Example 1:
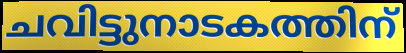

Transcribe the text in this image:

ചവിട്ടുനാടകത്തിന്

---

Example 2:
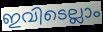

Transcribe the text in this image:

ഇവിടെല്ലാം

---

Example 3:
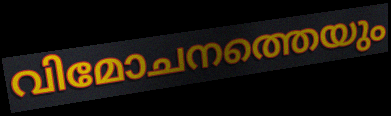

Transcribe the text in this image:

വിമോചനത്തെയും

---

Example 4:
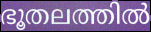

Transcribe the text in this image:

ഭൂതലത്തിൽ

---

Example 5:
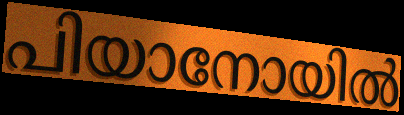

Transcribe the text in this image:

പിയാനോയിൽ